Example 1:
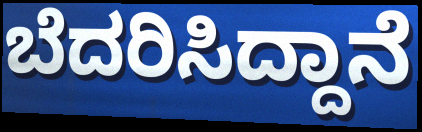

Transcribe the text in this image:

ಬೆದರಿಸಿದ್ದಾನೆ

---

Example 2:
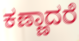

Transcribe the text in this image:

ಕಣ್ಣಾದರೆ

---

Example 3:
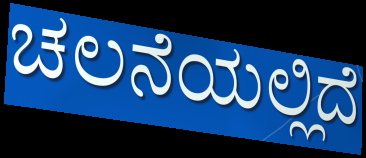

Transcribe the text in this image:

ಚಲನೆಯಲ್ಲಿದೆ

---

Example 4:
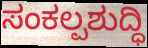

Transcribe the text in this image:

ಸಂಕಲ್ಪಶುದ್ಧಿ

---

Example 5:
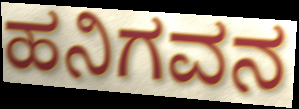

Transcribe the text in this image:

ಹನಿಗವನ